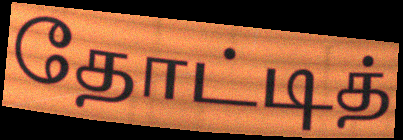
தோட்டித்